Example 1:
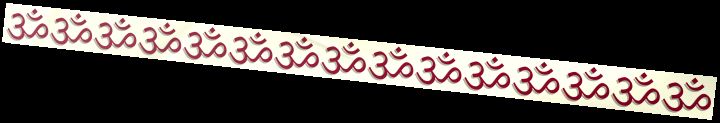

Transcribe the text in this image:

ॐॐॐॐॐॐॐॐॐॐॐॐॐॐॐ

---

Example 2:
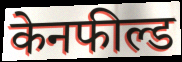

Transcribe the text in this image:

केनफील्ड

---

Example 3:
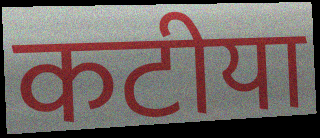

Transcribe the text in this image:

कटीया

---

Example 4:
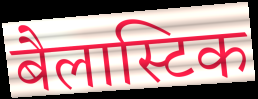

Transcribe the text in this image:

बैलास्टिक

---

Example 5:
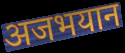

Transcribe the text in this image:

अजभयान